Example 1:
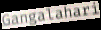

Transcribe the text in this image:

Gangalahari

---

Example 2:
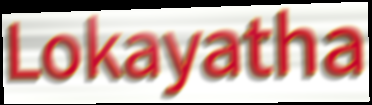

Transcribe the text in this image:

Lokayatha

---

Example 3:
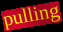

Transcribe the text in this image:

pulling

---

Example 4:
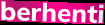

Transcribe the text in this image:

berhenti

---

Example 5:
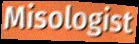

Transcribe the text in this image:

Misologist